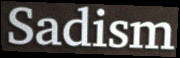
Sadism